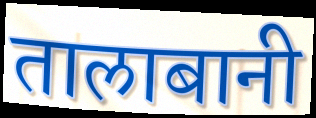
तालाबानी